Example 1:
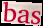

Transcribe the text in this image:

bas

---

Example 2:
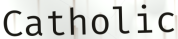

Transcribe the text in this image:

Catholic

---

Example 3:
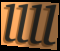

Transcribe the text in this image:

llll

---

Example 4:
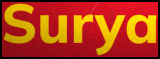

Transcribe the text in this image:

Surya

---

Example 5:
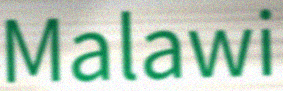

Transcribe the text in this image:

Malawi